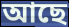
আছে